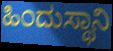
ಹಿಂದುಸ್ಥಾನಿ